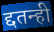
द्दतन्ही